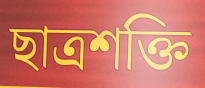
ছাত্ৰশক্তি